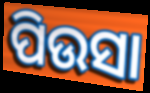
ପିଉସା